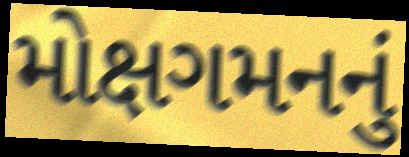
મોક્ષગમનનું